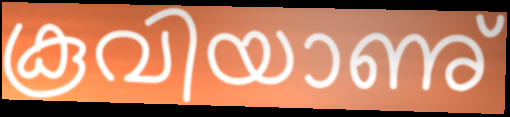
കൂവിയാണു്